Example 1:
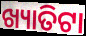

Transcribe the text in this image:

ଖ୍ୟାତିଟା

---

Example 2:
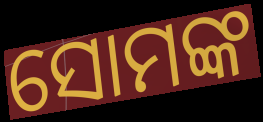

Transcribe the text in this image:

ସୋମଙ୍କ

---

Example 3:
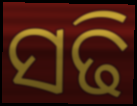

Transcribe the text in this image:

ସଢି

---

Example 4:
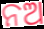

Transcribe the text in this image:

ନଅ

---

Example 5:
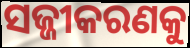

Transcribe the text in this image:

ସଜ୍ଜୀକରଣକୁ